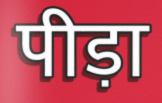
पीड़ा